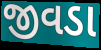
જીવડા